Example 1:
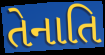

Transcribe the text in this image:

તેનાતિ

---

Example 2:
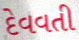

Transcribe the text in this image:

દેવવતી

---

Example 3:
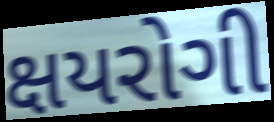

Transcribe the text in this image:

ક્ષયરોગી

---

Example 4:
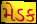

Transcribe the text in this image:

મેડક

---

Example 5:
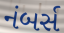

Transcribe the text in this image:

નંબર્સ